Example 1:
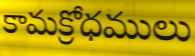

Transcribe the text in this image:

కామక్రోధములు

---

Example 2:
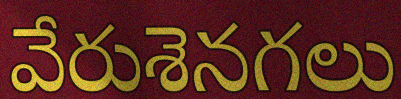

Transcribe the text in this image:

వేరుశెనగలు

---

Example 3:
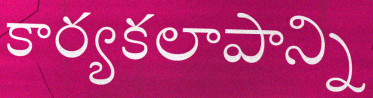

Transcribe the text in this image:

కార్యకలాపాన్ని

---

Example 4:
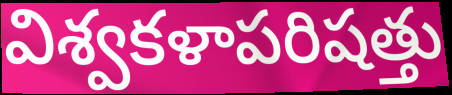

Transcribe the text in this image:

విశ్వకళాపరిషత్తు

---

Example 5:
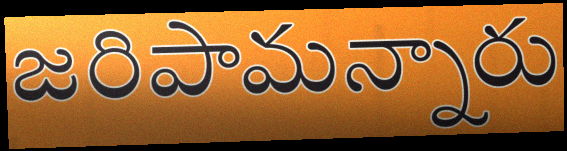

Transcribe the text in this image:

జరిపామన్నారు